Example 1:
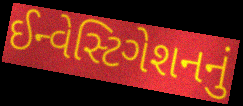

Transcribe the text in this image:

ઈન્વેસ્ટિગેશનનું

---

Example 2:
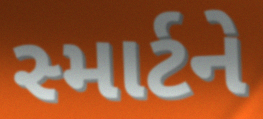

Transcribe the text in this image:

સ્માર્ટને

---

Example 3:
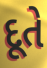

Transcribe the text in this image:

દૂતે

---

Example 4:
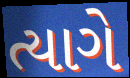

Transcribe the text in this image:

ત્યાગે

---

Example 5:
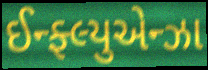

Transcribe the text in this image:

ઈન્ફ્લ્યુએન્ઝા